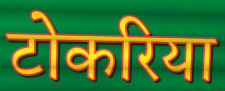
टोकरिया